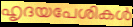
ഹൃദയപേശികൾ